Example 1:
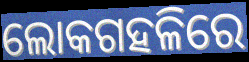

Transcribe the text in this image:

ଲୋକଗହଳିରେ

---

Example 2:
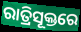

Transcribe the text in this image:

ରାତ୍ରିସୂକ୍ତରେ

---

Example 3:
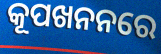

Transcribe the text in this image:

କୂପଖନନରେ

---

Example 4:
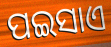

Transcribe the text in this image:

ପଇସାଏ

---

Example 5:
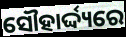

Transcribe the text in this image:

ସୌହାର୍ଦ୍ଦ୍ୟରେ